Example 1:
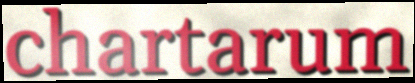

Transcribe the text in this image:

chartarum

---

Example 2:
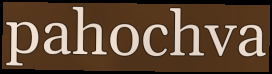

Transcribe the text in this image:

pahochva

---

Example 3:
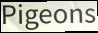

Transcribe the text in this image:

Pigeons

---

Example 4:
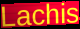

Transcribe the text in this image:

Lachis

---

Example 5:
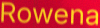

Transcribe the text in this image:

Rowena